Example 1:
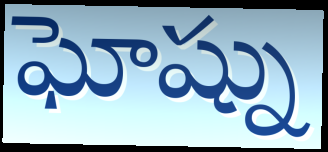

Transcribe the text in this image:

ఘోష్ను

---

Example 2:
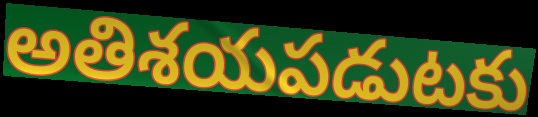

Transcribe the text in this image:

అతిశయపడుటకు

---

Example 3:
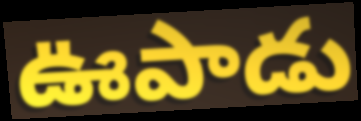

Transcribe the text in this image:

ఊపాడు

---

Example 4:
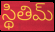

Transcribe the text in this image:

స్థితిమ్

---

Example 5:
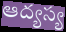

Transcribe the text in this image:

ఆద్యస్య